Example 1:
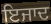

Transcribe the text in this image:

ਇਜਾਦ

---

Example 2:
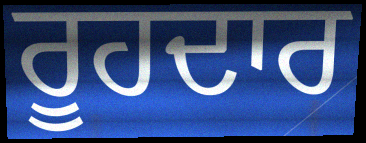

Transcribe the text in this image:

ਰੂਹਦਾਰ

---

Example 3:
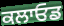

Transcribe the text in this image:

ਕਲਾਓਡ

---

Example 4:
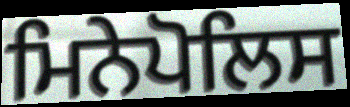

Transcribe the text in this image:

ਮਿਨੇਪੋਲਿਸ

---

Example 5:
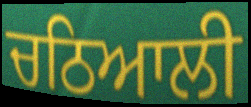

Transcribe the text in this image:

ਚਠਿਆਲੀ